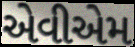
એવીએમ